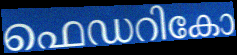
ഫെഡറികോ